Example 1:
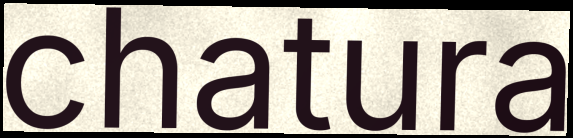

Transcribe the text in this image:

chatura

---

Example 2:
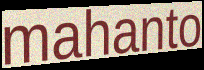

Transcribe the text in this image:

mahanto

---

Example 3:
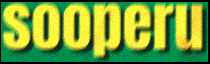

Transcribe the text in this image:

sooperu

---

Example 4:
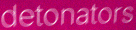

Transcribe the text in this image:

detonators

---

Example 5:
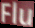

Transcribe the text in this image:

Flu